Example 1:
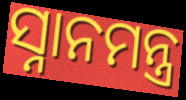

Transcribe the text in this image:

ସ୍ନାନମନ୍ତ୍ର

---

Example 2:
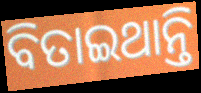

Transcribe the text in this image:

ବିତାଇଥାନ୍ତି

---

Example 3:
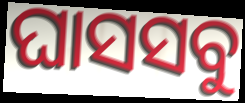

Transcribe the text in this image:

ଘାସସବୁ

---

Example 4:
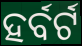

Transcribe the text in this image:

ହର୍ବର୍ଟ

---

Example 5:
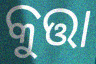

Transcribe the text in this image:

କୁତ୍ତା